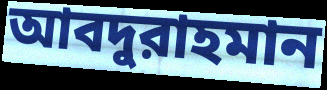
আবদুরাহমান